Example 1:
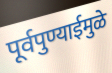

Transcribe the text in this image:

पूर्वपुण्याईमुळे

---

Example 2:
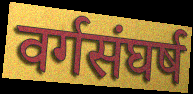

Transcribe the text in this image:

वर्गसंघर्ष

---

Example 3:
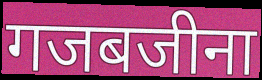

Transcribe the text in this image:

गजबजीना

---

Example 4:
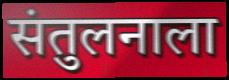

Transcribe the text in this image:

संतुलनाला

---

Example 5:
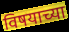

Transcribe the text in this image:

विषयाच्या